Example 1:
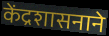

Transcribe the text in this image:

केंद्रशासनाने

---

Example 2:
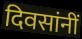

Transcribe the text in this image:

दिवसांनीं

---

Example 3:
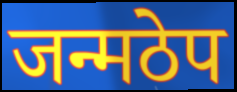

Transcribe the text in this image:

जन्मठेप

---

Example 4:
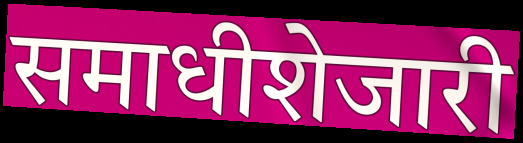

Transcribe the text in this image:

समाधीशेजारी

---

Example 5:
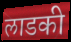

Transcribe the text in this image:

लाडकी